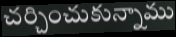
చర్చించుకున్నాము